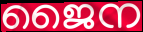
ജൈന